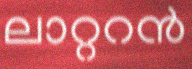
ലാറ്ററൻ